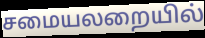
சமையலறையில்